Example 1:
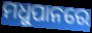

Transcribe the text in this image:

ମଧୁପାନରେ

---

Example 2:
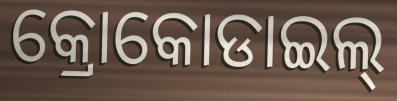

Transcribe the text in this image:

କ୍ରୋକୋଡାଇଲ୍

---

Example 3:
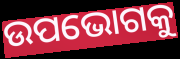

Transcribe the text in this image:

ଉପଭୋଗକୁ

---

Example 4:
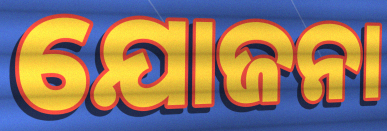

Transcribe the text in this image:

ଯୋଜନା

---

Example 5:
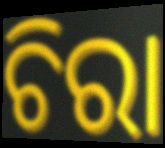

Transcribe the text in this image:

ଚିରା